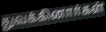
துவக்கினார்கள்